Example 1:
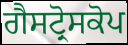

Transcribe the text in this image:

ਗੈਸਟ੍ਰੋਸਕੋਪ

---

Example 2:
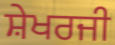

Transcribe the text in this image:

ਸ਼ੇਖਰਜੀ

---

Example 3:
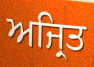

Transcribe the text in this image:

ਅਜ੍ਰਿਤ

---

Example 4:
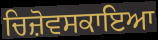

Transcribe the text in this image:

ਚਿਜ਼ੋਵਸਕਾਇਆ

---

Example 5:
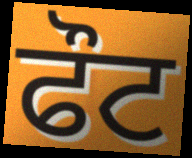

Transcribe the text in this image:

ਫੌਟ